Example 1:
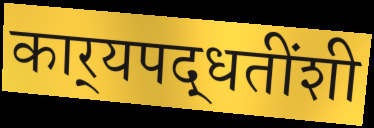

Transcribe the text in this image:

कार्यपद्धतींशी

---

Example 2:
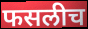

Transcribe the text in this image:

फसलीच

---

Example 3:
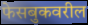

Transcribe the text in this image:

फेसबुकवरील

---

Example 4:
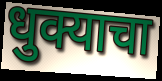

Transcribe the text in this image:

धुक्याचा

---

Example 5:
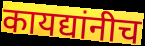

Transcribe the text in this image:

कायद्यांनीच